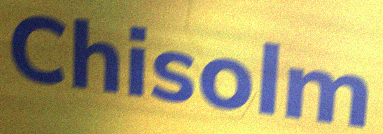
Chisolm